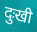
दुःखी